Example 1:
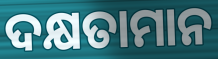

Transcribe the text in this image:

ଦକ୍ଷତାମାନ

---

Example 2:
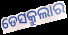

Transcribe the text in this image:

ଡେସକ୍ରୁଲାର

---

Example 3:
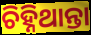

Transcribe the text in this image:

ଚିହ୍ନିଥାନ୍ତା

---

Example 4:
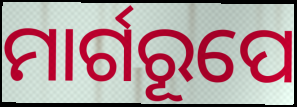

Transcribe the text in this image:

ମାର୍ଗରୂପେ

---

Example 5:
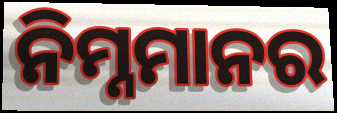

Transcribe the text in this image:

ନିମ୍ନମାନର